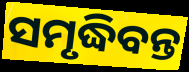
ସମୃଦ୍ଧିବନ୍ତ